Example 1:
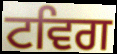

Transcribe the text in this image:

ਟਵਿਗ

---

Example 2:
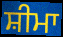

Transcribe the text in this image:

ਸ਼ੀਮਾ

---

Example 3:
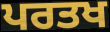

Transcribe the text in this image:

ਪਰਤਖ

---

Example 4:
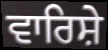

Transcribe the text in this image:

ਵਾਰਿਸ਼ੇ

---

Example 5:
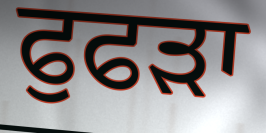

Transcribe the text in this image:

ਫੁਫੜਾ